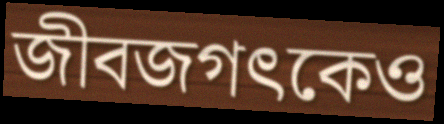
জীবজগৎকেও